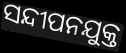
ସନ୍ଦୀପନଯୁକ୍ତ